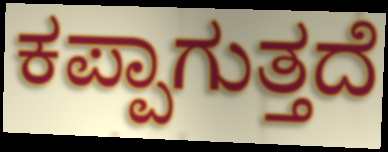
ಕಪ್ಪಾಗುತ್ತದೆ